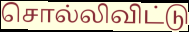
சொல்லிவிட்டு